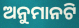
ଅନୁମାନଟି